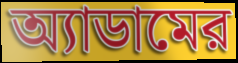
অ্যাডামের